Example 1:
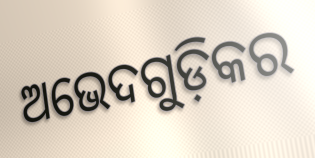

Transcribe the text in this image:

ଅଭେଦଗୁଡ଼ିକର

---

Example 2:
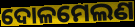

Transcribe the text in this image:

ଦୋଳମେଲଣ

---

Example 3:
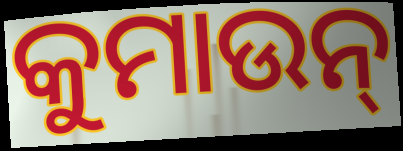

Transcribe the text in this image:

କୁମାଉନ୍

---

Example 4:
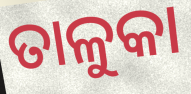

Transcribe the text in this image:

ତାଳୁକା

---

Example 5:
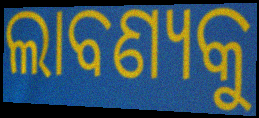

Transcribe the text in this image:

ଲାବଣ୍ୟକୁ